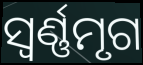
ସ୍ଵର୍ଣ୍ଣମୃଗ